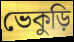
ভেকুড়ি